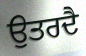
ਉਤਰਦੈ